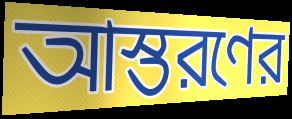
আস্তরণের